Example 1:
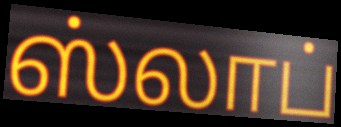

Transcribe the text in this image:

ஸ்லாப்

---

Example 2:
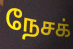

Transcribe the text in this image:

நேசக்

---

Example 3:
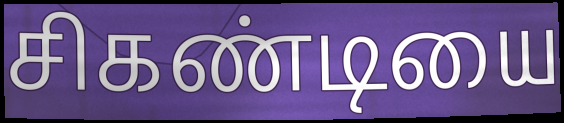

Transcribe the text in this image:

சிகண்டியை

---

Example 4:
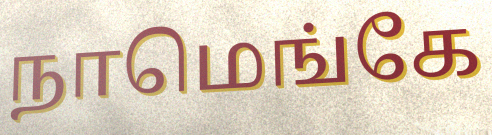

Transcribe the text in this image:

நாமெங்கே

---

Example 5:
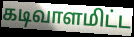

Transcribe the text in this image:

கடிவாளமிட்ட